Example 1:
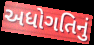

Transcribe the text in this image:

અધોગતિનું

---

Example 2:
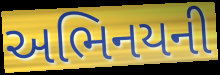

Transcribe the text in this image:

અભિનયની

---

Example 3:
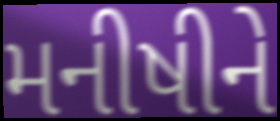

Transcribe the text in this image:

મનીષીને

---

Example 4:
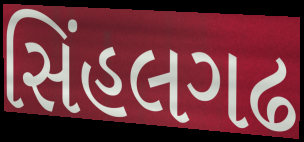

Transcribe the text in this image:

સિંહલગઢ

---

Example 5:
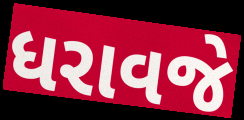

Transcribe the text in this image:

ધરાવજે